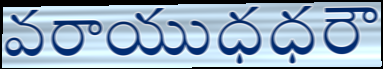
వరాయుధధరౌ